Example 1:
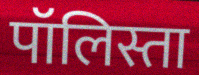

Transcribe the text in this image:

पॉलिस्ता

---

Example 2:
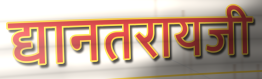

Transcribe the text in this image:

द्यानतरायजी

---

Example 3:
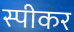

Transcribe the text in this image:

स्‍पीकर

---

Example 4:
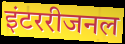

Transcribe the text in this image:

इंटररीजनल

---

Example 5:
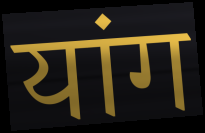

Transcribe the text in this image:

यांग